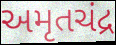
અમૃતચંદ્ર